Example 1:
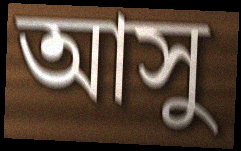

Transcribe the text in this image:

আসু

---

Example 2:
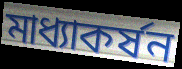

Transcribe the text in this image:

মাধ্যাকর্ষন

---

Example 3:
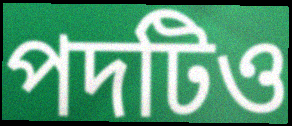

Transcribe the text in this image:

পদটিও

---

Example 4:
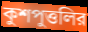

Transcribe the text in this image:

কুশপুত্তলির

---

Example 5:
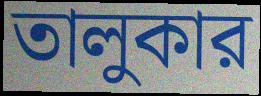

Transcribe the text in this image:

তালুকার